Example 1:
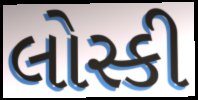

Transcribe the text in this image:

લોસ્કી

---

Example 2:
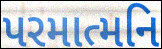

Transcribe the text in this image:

પરમાત્મનિ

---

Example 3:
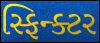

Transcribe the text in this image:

સ્ફિન્ક્ટર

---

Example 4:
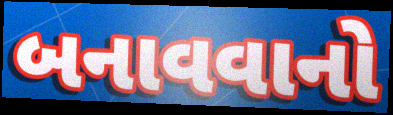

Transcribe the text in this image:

બનાવવાનો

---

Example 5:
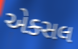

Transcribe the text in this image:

એક્સલ